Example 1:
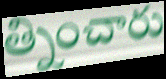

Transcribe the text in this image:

త్నించారు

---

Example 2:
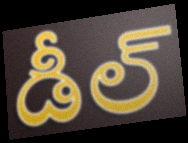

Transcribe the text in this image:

డీల్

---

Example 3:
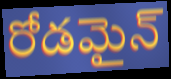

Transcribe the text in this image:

రోడమైన్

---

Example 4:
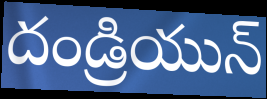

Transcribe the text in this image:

దండ్రియున్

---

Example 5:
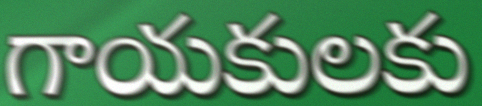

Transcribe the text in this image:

గాయకులకు